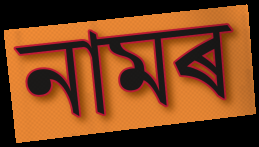
নামৰ